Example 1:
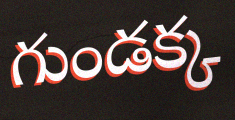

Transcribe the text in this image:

గుండక్క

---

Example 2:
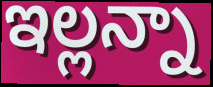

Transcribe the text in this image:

ఇల్లన్నా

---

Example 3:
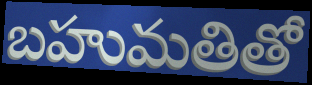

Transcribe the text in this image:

బహుమతితో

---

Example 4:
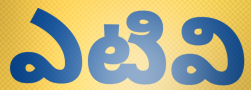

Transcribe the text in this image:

ఎటివి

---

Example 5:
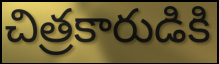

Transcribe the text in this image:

చిత్రకారుడికి